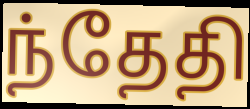
ந்தேதி